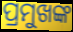
ପ୍ରମୁଖଙ୍କ